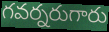
గవర్నరుగారు